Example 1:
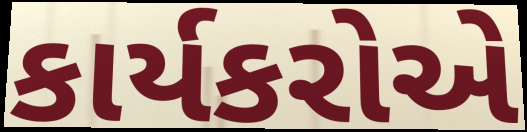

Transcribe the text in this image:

કાર્યકરોએ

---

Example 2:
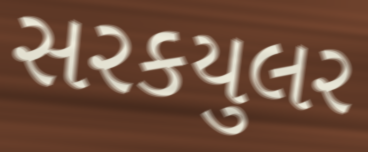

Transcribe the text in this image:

સરકયુલર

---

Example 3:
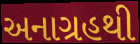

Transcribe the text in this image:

અનાગ્રહથી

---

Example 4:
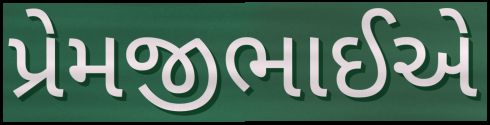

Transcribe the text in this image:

પ્રેમજીભાઈએ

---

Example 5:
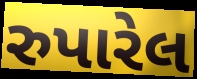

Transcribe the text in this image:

રુપારેલ